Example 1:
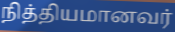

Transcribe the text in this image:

நித்தியமானவர்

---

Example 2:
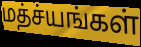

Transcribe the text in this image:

மத்ச்யங்கள்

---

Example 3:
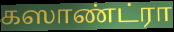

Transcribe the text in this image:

கஸாண்ட்ரா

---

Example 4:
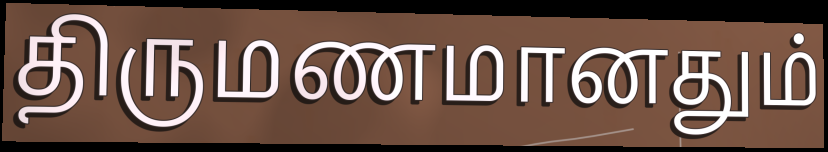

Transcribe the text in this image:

திருமணமானதும்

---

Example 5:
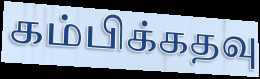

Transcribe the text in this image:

கம்பிக்கதவு